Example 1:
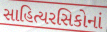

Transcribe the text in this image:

સાહિત્યરસિકોનાં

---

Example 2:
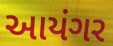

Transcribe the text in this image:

આયંગર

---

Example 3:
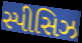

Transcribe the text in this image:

સ્પીસિઝ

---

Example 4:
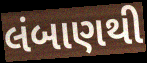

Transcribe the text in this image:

લંબાણથી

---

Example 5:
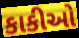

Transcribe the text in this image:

કાકીઓ